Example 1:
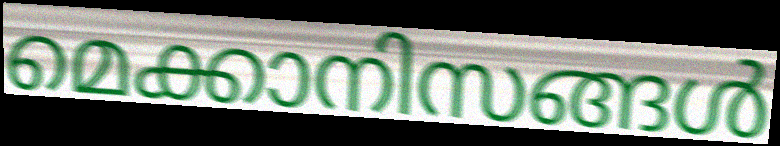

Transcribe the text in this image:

മെക്കാനിസങ്ങൾ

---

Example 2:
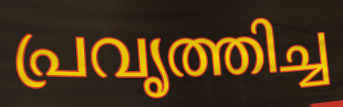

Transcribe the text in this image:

പ്രവൃത്തിച്ച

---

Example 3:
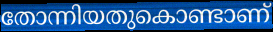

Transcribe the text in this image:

തോന്നിയതുകൊണ്ടാണ്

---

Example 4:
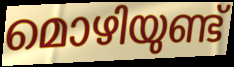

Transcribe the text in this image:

മൊഴിയുണ്ട്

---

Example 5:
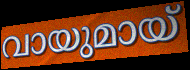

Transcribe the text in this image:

വായുമായ്